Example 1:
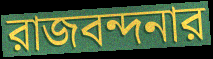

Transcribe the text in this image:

রাজবন্দনার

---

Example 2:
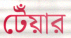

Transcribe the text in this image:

টেঁয়ার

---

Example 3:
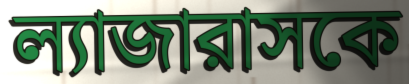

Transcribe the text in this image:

ল্যাজারাসকে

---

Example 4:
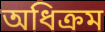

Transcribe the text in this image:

অধিক্রম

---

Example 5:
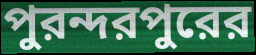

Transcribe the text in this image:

পুরন্দরপুরের